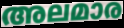
അലമാര